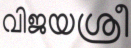
വിജയശ്രീ